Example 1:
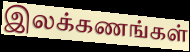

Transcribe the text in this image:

இலக்கணங்கள்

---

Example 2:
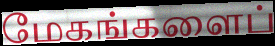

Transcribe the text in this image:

மேகங்களைப்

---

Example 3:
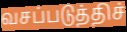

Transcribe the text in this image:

வசப்படுத்திச்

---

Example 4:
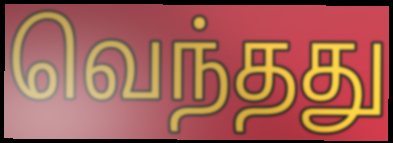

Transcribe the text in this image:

வெந்தது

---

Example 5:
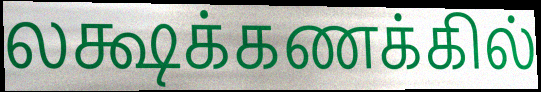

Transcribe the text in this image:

லக்ஷக்கணக்கில்